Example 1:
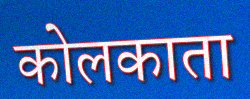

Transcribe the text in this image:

कोलकाता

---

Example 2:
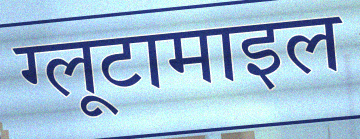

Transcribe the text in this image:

ग्लूटामाइल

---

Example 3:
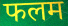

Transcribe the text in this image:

फलम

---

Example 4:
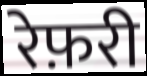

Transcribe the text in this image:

रेफ़री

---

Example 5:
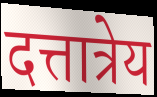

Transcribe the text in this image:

दत्तात्रेय